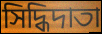
সিদ্ধিদাতা